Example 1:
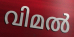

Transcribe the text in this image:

വിമൽ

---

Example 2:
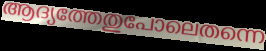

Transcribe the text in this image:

ആദ്യത്തേതുപോലെതന്നെ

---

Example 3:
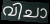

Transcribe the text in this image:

വിചാ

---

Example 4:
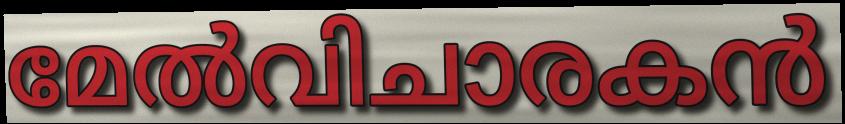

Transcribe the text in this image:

മേൽവിചാരകൻ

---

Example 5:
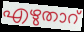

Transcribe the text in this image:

എഴുതാറ്